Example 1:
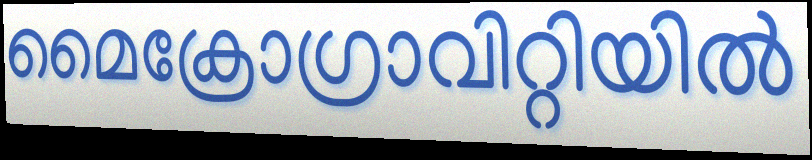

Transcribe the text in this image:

മൈക്രോഗ്രാവിറ്റിയിൽ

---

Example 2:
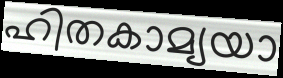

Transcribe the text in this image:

ഹിതകാമ്യയാ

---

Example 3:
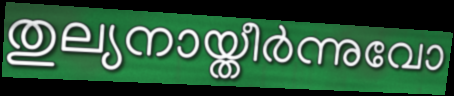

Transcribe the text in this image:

തുല്യനായ്തീർന്നുവോ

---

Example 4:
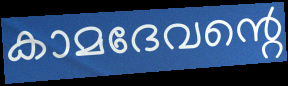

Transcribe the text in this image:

കാമദേവന്റെ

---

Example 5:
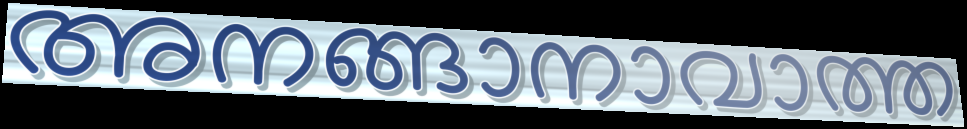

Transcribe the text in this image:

അനങ്ങാനാവാത്ത